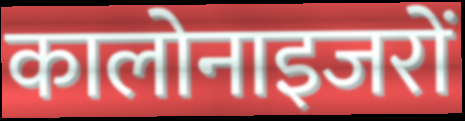
कालोनाइजरों